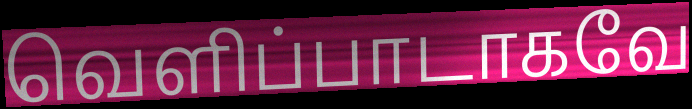
வெளிப்பாடாகவே